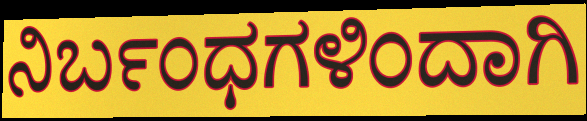
ನಿರ್ಬಂಧಗಳಿಂದಾಗಿ